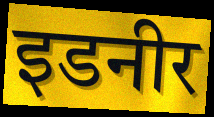
इडनीर